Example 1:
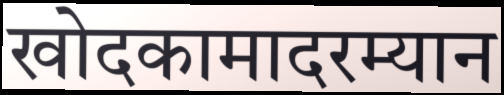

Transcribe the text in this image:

खोदकामादरम्यान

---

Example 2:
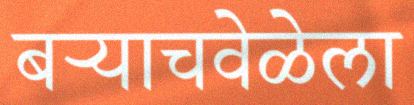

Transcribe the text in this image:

बर्‍याचवेळेला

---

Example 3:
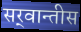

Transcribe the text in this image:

सर्वान्तीस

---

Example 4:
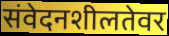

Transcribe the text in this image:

संवेदनशीलतेवर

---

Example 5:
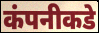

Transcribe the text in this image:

कंपनीकडे